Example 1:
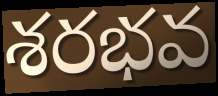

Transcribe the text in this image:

శరభవ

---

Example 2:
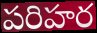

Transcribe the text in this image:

పరిహర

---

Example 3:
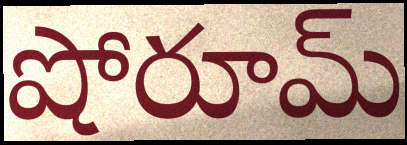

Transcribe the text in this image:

షోరూమ్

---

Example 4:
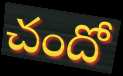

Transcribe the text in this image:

చందో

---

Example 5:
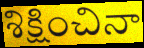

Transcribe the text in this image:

శిక్షించినా